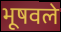
भूषवले